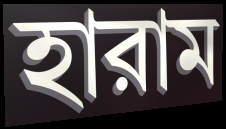
হারাম